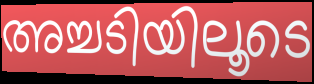
അച്ചടിയിലൂടെ